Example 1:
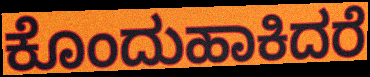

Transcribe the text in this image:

ಕೊಂದುಹಾಕಿದರೆ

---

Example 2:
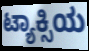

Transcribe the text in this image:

ಟ್ಯಾಕ್ಸಿಯ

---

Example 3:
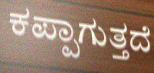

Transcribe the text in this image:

ಕಪ್ಪಾಗುತ್ತದೆ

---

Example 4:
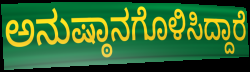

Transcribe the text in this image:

ಅನುಷ್ಠಾನಗೊಳಿಸಿದ್ದಾರೆ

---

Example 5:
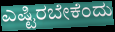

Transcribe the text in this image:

ಎಷ್ಟಿರಬೇಕೆಂದು